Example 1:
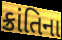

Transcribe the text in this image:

ક્રાંતિના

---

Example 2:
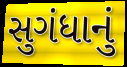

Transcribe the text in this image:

સુગંધાનું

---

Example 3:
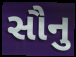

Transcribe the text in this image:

સૌનુ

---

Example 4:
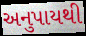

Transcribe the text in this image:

અનુપાયથી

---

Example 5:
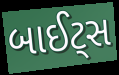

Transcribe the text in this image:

બાઈટ્સ